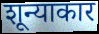
शून्याकार